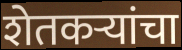
शेतकऱ्यांचा